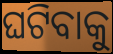
ଘଟିବାକୁ